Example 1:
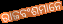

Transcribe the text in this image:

ରାଜବଂଶମାନେ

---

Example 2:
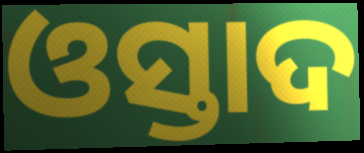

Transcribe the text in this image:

ଓସ୍ତାଦ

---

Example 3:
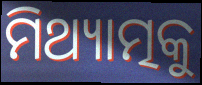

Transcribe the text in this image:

ମିଥ୍ୟାତ୍ମକୁ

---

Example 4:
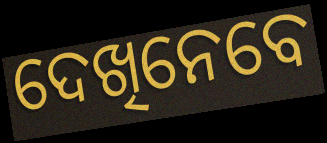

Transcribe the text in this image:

ଦେଖିନେବେ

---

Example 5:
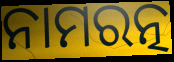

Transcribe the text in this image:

ନାମରତ୍ନ